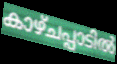
കാഴ്ചപ്പാടിൽ